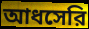
আধসেরি